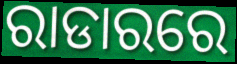
ରାଡାରରେ